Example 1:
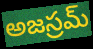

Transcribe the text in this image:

అజస్రమ్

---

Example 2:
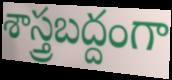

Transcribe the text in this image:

శాస్త్రబద్దంగా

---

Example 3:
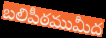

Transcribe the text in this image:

బలిపీఠముమీద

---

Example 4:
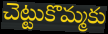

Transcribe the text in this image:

చెట్టుకొమ్మకు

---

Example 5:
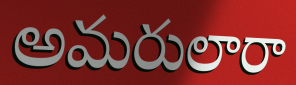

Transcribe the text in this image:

అమరులారా